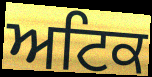
ਅਟਿਕ